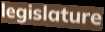
legislature